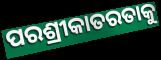
ପରଶ୍ରୀକାତରତାକୁ